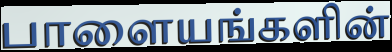
பாளையங்களின்